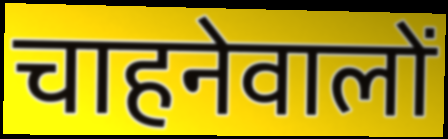
चाहनेवालों